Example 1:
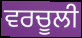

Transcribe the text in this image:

ਵਰਚੂਲੀ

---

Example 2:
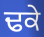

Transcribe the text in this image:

ਢਕੇ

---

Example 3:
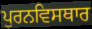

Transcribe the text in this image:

ਪੁਰਨਵਿਸਥਾਰ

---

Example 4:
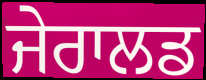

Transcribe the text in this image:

ਜੇਰਾਲਡ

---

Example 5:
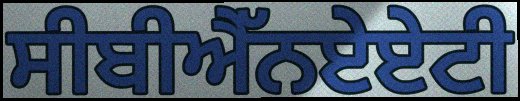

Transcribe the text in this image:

ਸੀਬੀਐੱਨਏਏਟੀ